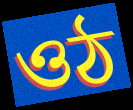
ওঠ